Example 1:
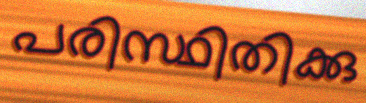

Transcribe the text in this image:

പരിസ്ഥിതിക്കു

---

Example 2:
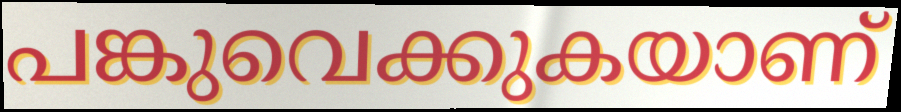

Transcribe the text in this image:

പങ്കുവെക്കുകയാണ്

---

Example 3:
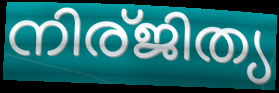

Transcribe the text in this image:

നിര്ജിത്യ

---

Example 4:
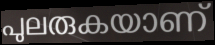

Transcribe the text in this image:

പുലരുകയാണ്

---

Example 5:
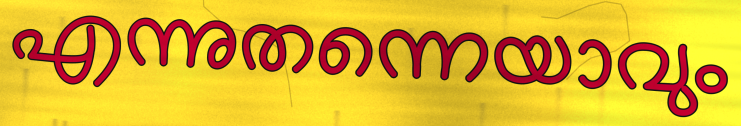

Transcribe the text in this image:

എന്നുതന്നെയാവും